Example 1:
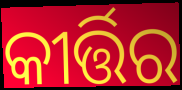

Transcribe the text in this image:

କୀର୍ତ୍ତିର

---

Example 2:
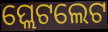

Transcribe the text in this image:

ପ୍ଲେଟଲେଟ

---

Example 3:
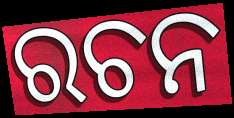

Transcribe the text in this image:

ରଚନ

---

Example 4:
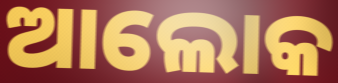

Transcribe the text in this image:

ଆଲୋକ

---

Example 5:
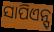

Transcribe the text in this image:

ସାପିଏନ୍ସ୍